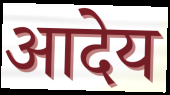
आदेय